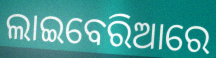
ଲାଇବେରିଆରେ